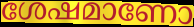
ശേഷമാണോ